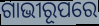
ଗାଭୀରୂପରେ